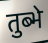
तुब्भे